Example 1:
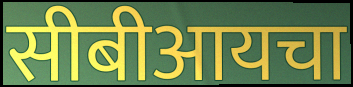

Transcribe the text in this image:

सीबीआयचा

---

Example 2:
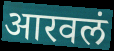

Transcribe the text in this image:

आरवलं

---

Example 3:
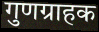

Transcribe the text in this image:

गुणग्राहक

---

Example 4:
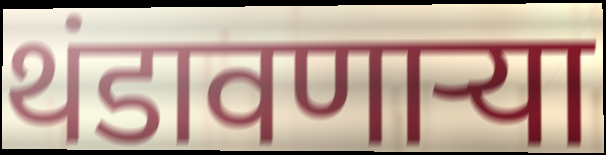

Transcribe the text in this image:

थंडावणाऱ्या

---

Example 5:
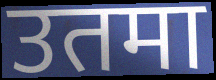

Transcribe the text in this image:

उतमा